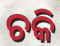
ଚକି